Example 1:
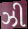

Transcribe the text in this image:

ઝી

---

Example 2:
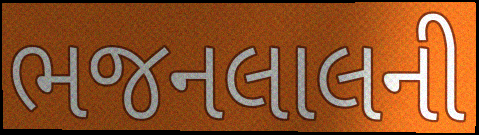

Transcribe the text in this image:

ભજનલાલની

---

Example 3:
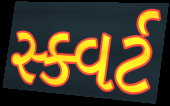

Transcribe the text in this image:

સ્ક્વર્ટ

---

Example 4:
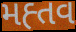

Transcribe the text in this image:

મહ્તવ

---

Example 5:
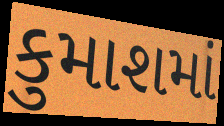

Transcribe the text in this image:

કુમાશમાં